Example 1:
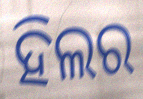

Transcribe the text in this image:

ହିଲର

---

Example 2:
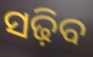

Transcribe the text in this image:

ସଢ଼ିବ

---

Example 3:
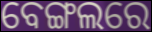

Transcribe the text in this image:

ବେଙ୍ଗଲରେ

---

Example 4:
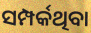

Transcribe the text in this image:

ସମ୍ପର୍କଥିବା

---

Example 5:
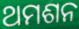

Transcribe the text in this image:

ଥମଶନ